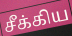
சீக்கிய